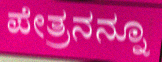
ಪೇತ್ರನನ್ನೂ